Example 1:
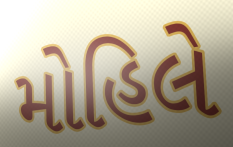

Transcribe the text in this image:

મોહિલે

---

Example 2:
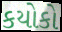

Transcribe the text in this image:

કયોકો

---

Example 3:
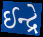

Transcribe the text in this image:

ઈન્દ્રે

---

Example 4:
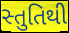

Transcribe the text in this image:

સ્તુતિથી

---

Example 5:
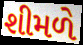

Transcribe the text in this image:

શીમળે